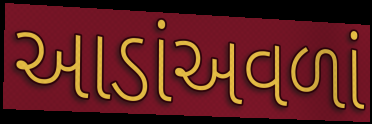
આડાંઅવળાં